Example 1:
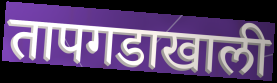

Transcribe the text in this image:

तापगडाखाली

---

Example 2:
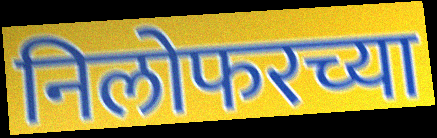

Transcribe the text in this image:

निलोफरच्या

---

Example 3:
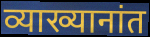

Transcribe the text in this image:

व्याख्यानांत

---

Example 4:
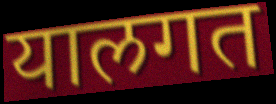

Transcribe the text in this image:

यालगत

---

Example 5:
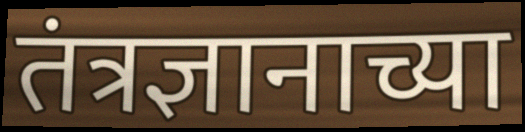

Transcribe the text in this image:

तंत्रज्ञानाच्या